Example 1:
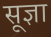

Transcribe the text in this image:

सूज्ञा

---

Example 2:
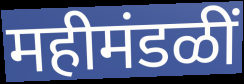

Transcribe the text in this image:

महीमंडळीं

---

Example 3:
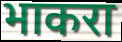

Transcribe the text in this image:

भाकरा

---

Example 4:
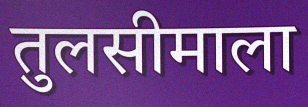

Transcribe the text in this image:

तुलसीमाला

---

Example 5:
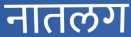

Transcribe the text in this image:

नातलग